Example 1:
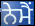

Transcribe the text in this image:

ਨੇਮੈਂ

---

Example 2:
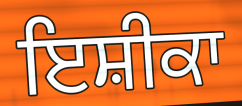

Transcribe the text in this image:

ਇਸ਼ੀਕਾ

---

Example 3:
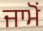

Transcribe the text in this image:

ਜਾਮੋਂ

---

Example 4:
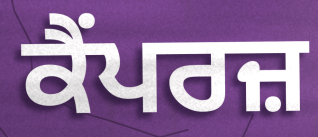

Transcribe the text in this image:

ਕੈਂਪਰਜ਼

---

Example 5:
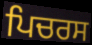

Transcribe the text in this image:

ਪਿਚਰਸ